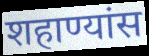
शहाण्यांस